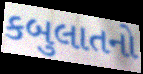
કબુલાતનો